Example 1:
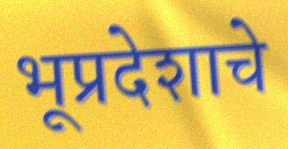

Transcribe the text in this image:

भूप्रदेशाचे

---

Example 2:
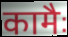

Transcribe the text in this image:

कामैः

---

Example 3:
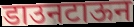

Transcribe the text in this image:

डाउनटाऊन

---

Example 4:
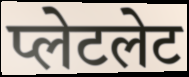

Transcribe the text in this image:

प्लेटलेट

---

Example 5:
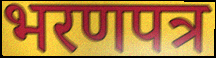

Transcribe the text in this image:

भरणपत्र